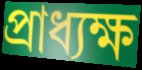
প্রাধ্যক্ষ